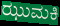
ಝುಮಕಿ